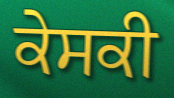
ਕੇਸਕੀ